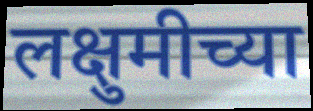
लक्षुमीच्या